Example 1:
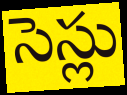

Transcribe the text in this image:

సెస్లు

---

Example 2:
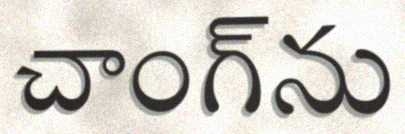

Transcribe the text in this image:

చాంగ్‌ను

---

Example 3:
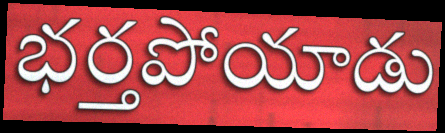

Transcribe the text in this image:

భర్తపోయాడు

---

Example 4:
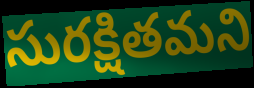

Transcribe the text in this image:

సురక్షితమని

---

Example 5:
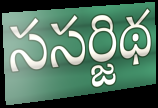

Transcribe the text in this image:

ససర్జిథ